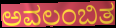
ಅವಲಂಬಿತ